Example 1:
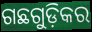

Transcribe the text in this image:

ଗଛଗୁଡ଼ିକର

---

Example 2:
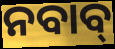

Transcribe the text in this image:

ନବାବ୍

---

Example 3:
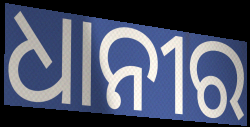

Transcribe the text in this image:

ଧାନୀର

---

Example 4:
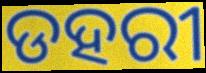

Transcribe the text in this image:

ଡହରୀ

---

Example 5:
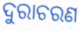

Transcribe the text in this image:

ଦୁରାଚରଣ